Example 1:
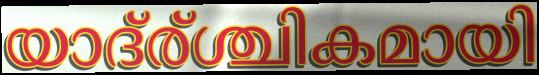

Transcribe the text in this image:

യാദ്ര്ശ്ചികമായി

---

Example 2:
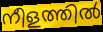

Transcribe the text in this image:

നീളത്തിൽ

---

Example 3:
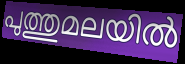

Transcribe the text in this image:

പുത്തുമലയിൽ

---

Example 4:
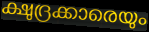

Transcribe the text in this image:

ക്ഷുദ്രക്കാരെയും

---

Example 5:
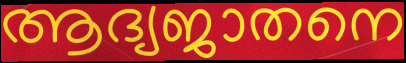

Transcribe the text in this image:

ആദ്യജാതനെ